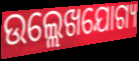
ଉଲ୍ଲେଖଯୋଗ୍ୟ